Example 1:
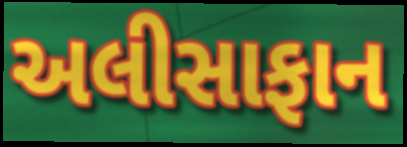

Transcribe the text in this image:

અલીસાફાન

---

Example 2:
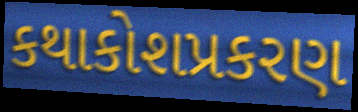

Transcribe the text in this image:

કથાકોશપ્રકરણ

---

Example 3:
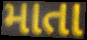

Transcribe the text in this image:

માતા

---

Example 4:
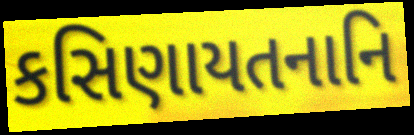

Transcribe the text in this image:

કસિણાયતનાનિ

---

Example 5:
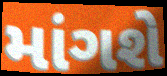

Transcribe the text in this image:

માંગશે